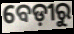
ବେଡ଼ୀରୁ